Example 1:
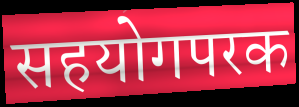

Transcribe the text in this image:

सहयोगपरक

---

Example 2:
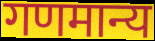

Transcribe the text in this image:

गणमान्‍य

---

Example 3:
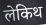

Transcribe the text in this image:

लेकिथ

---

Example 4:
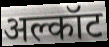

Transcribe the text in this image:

अल्कॉट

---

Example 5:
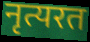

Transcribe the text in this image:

नृत्यरत